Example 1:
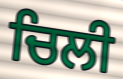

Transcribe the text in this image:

ਚਿਲੀ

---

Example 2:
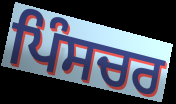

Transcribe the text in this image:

ਪਿੰਸਚਰ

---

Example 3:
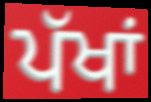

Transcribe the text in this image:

ਪੱਖਾਂ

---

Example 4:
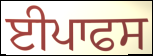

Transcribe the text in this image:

ਈਪਾਫਸ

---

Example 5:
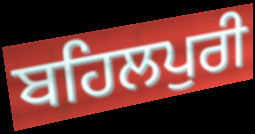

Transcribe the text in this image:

ਬਹਿਲਪੁਰੀ